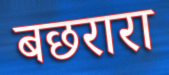
बछरारा